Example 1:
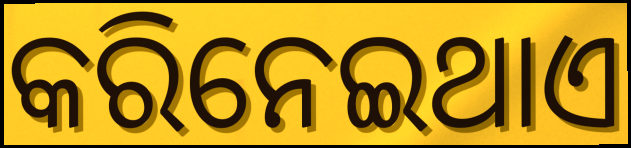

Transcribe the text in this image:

କରିନେଇଥାଏ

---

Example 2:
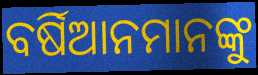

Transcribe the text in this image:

ବର୍ଷିଆନମାନଙ୍କୁ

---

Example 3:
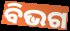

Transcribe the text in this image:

ବିଭଗ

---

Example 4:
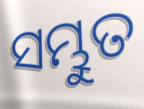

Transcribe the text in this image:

ସମ୍ଭୁତ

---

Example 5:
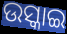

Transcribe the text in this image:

ଉସ୍କାଇ